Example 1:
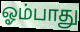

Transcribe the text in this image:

ஓம்பாது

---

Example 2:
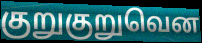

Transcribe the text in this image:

குறுகுறுவென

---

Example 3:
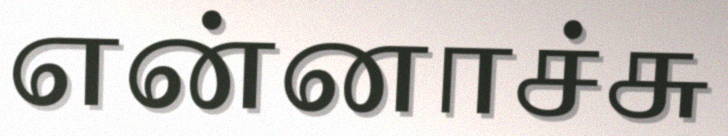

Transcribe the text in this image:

என்னாச்சு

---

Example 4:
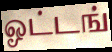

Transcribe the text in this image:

ஓட்டங்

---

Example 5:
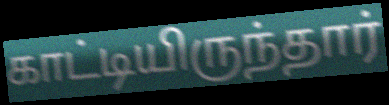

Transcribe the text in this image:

காட்டியிருந்தார்